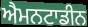
ਐਮਨਟਾਡੀਨ